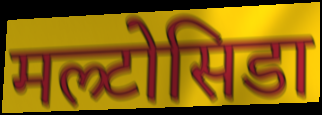
मल्टोसिडा